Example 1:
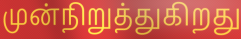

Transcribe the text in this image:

முன்நிறுத்துகிறது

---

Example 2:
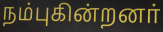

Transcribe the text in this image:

நம்புகின்றனர்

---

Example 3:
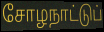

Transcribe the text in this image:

சோழநாட்டுப்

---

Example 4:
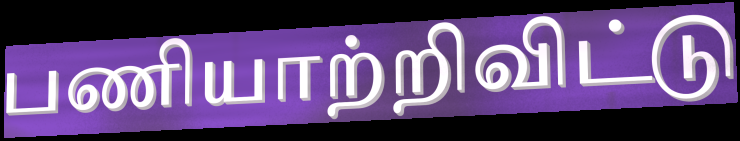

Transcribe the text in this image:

பணியாற்றிவிட்டு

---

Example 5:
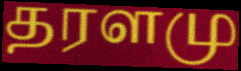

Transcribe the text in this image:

தரளமு